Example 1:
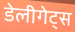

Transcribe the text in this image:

डेलीगेट्स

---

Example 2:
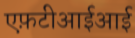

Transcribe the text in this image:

एफ़टीआईआई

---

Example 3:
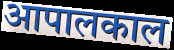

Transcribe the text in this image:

आपालकाल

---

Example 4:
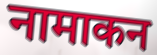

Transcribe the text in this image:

नामाकन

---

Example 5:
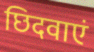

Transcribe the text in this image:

छिदवाएं